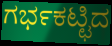
ಗರ್ಭಕಟ್ಟಿದ